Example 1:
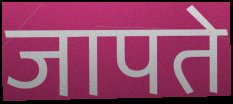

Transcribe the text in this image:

जापते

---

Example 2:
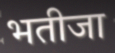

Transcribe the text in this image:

भतीजा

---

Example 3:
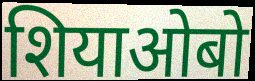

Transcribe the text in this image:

शियाओबो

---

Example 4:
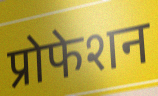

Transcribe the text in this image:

प्रोफेशन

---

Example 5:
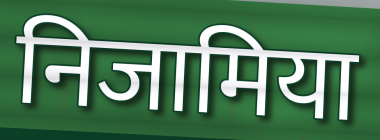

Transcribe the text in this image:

निजामिया